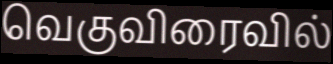
வெகுவிரைவில்